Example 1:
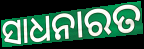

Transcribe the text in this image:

ସାଧନାରତ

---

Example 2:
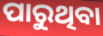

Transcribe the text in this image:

ପାରୁଥିବା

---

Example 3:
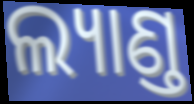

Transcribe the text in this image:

ଲ୍ୟାଣ୍ଡ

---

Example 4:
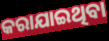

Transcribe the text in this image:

କରାଯାଇଥିବା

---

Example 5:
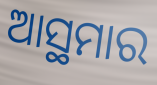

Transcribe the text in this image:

ଆସ୍ଥମାର